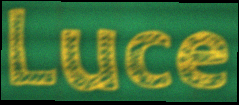
Luce